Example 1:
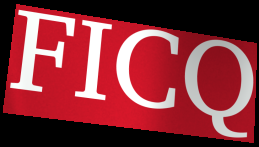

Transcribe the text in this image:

FICQ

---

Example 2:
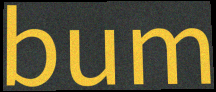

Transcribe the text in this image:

bum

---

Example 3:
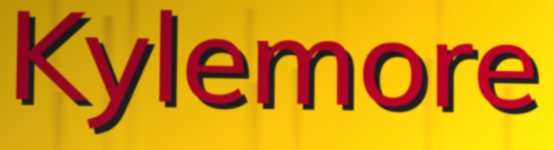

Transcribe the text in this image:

Kylemore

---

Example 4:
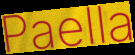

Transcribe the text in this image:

Paella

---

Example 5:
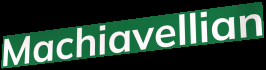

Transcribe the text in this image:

Machiavellian